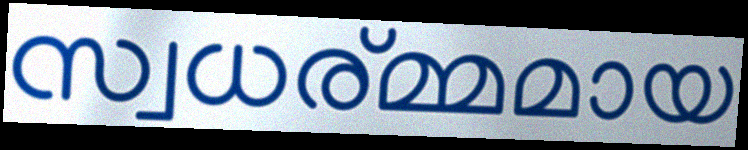
സ്വധര്മ്മമായ